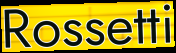
Rossetti